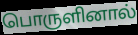
பொருளினால்